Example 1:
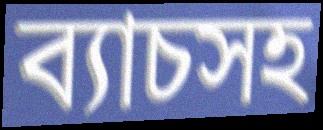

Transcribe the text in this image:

ব্যাচসহ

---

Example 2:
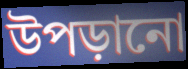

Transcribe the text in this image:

উপড়ানো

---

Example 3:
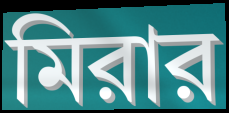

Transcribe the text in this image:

মিরার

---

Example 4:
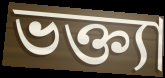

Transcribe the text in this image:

ভক্ত্যা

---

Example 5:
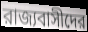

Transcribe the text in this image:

রাজ্যবাসীদের